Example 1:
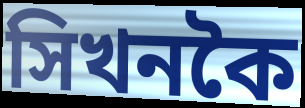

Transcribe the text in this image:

সিখনকৈ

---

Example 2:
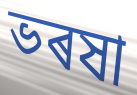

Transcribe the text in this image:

ভৰষা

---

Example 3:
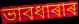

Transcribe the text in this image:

ভাবধাৰাৰ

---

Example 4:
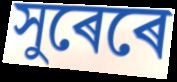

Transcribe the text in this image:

সুৰেৰে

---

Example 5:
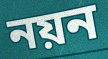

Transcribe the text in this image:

নয়ন